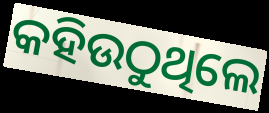
କହିଉଠୁଥିଲେ